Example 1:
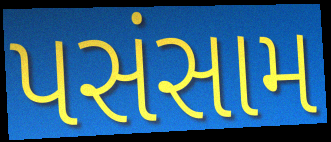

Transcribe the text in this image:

પસંસામ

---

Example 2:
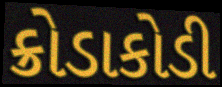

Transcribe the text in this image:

ક્રોડાકોડી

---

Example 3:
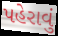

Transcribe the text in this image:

પહેરાવું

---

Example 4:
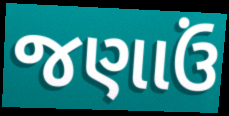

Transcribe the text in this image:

જણાઉં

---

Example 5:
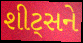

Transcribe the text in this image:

શીટ્સને